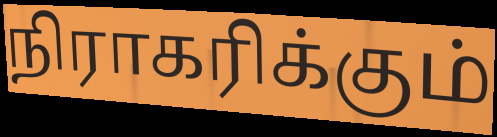
நிராகரிக்கும்